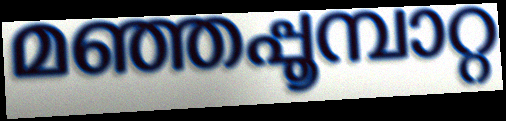
മഞ്ഞപ്പൂമ്പാറ്റ